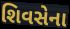
શિવસેના